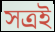
সত্ৰই